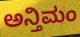
ಅನ್ತಿಮಂ